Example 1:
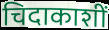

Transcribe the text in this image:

चिदाकाशीं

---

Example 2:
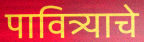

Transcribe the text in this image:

पावित्र्याचे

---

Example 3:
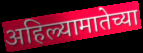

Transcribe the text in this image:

अहिल्यामातेच्या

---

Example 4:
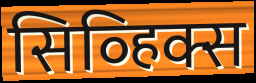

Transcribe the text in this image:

सिव्हिक्स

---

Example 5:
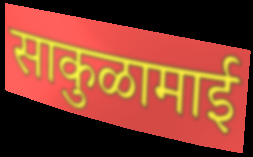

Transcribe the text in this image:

साकुळामाई